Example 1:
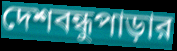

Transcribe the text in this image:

দেশবন্ধুপাড়ার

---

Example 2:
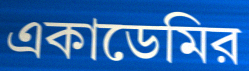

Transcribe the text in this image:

একাডেমির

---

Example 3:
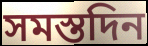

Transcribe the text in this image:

সমস্তদিন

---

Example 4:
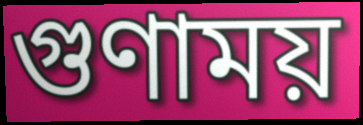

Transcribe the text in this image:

গুণাময়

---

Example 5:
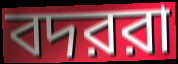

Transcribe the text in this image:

বদররা